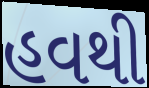
હવથી